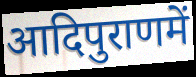
आदिपुराणमें